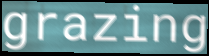
grazing